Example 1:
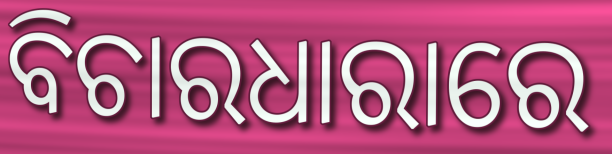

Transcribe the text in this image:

ବିଚାରଧାରାରେ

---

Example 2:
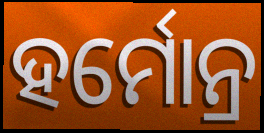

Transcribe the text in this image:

ହର୍ମୋନ୍ର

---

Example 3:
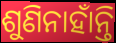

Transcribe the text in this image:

ଶୁଣିନାହାଁନ୍ତି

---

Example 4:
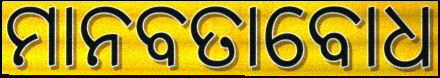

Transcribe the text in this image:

ମାନବତାବୋଧ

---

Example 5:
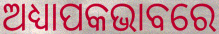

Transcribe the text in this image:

ଅଧ୍ୟାପକଭାବରେ